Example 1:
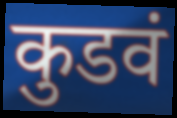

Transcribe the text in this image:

कुडवं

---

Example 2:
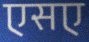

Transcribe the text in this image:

एसए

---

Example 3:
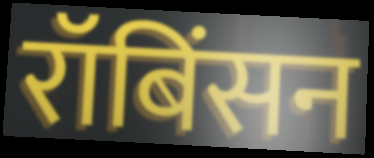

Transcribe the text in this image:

रॉबिंसन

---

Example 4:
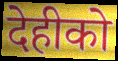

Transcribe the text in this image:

देहीको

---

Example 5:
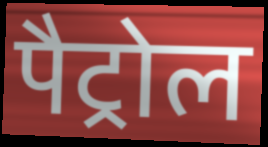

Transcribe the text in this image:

पैट्रोल